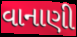
વાનાણી